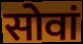
सोवां